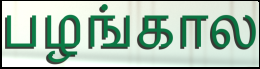
பழங்கால